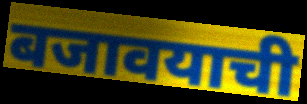
बजावयाची